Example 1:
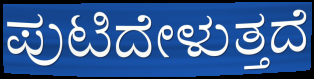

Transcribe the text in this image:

ಪುಟಿದೇಳುತ್ತದೆ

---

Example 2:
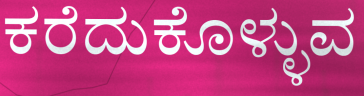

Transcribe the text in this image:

ಕರೆದುಕೊಳ್ಳುವ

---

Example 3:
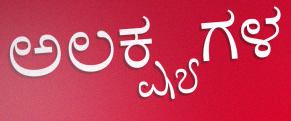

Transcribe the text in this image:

ಅಲಕ್ಷ್ಯಗಳ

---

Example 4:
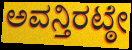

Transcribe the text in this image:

ಅವನ್ತಿರಟ್ಠೇ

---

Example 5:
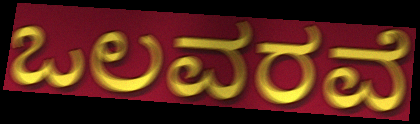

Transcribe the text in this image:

ಒಲವರವೆ